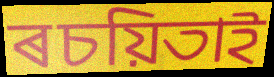
ৰচয়িতাই